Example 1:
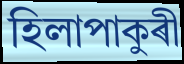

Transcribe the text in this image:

হিলাপাকুৰী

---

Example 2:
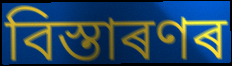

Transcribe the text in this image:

বিস্তাৰণৰ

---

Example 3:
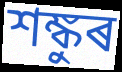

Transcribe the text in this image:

শঙ্কুৰ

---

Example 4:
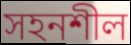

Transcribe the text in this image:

সহনশীল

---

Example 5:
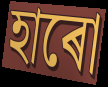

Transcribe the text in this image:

হাৰো